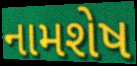
નામશેષ